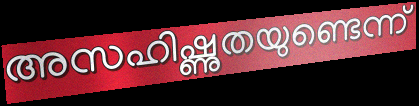
അസഹിഷ്ണുതയുണ്ടെന്ന്